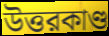
উত্তরকাণ্ড